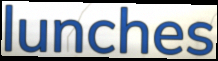
lunches